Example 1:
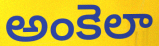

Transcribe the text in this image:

అంకెలా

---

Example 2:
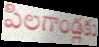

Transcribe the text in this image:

పిలగాండ్లకు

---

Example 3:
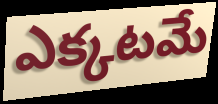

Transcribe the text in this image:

ఎక్కటమే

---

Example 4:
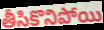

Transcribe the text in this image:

తీసికొనిపోయి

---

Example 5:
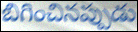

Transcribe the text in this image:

బిగించినప్పుడు